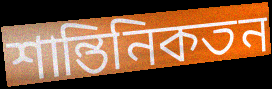
শান্তিনিকতন